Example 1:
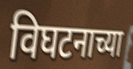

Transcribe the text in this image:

विघटनाच्या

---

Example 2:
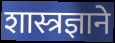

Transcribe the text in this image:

शास्त्रज्ञाने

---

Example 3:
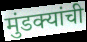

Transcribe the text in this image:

मुंडक्यांची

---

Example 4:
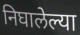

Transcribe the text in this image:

निघालेल्या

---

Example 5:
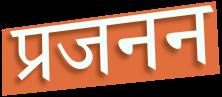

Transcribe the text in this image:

प्रजनन